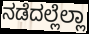
ನಡೆದಲ್ಲೆಲ್ಲಾ